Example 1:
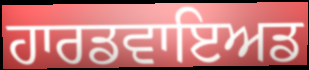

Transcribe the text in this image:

ਹਾਰਡਵਾਇਅਡ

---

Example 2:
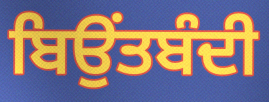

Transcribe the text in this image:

ਬਿਉਂਤਬੰਦੀ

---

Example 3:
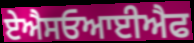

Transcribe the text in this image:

ਏਐਸਓਆਈਐਫ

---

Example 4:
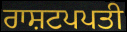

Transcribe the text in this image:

ਰਾਸ਼ਟਪਪਤੀ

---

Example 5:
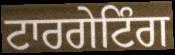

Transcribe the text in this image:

ਟਾਰਗੇਟਿੰਗ